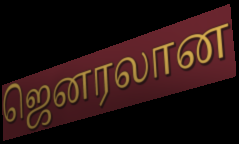
ஜெனரலான